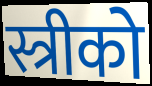
स्त्रीको